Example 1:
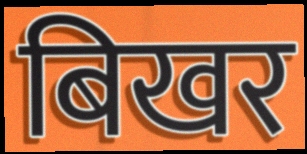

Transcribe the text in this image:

बिखर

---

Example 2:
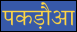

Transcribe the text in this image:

पकड़ौआ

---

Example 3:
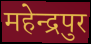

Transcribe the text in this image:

महेन्द्रपुर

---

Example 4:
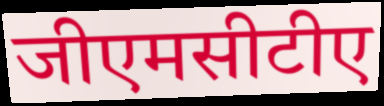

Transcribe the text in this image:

जीएमसीटीए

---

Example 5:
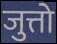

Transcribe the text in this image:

जुत्तो